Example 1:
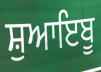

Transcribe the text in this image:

ਸ਼ੁਆਇਬੂ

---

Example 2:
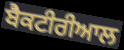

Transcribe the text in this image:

ਬੈਕਟੀਰੀਆਲ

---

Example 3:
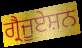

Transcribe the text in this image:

ਗ੍ਰੈਜੂਏਸ਼ਨ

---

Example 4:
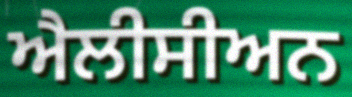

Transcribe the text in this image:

ਐਲੀਸੀਅਨ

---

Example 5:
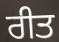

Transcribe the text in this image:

ਰੀਤ